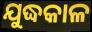
ଯୁଦ୍ଧକାଳ